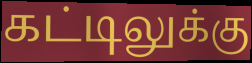
கட்டிலுக்கு